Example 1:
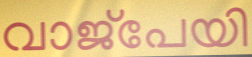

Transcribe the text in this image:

വാജ്പേയി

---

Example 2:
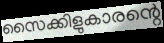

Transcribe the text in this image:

സൈക്കിളുകാരന്റെ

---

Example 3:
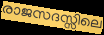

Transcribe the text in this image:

രാജസദസ്സിലെ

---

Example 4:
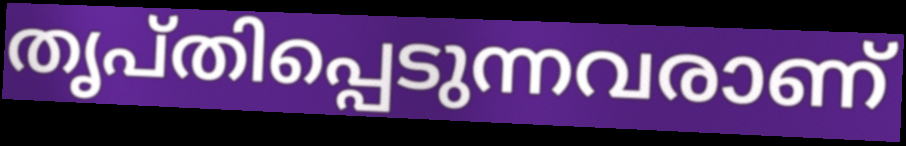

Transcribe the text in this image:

തൃപ്തിപ്പെടുന്നവരാണ്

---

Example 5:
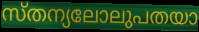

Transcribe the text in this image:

സ്തന്യലോലുപതയാ